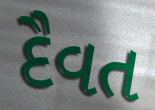
દૈવત